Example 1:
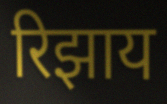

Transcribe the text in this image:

रिझाय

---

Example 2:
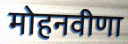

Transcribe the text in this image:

मोहनवीणा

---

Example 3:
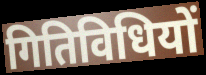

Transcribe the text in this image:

गितिविधियों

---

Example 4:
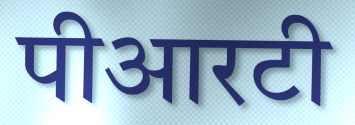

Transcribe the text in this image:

पीआरटी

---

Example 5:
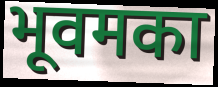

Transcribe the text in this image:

भूवमका